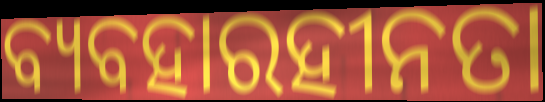
ବ୍ୟବହାରହୀନତା